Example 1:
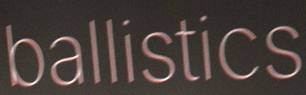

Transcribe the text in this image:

ballistics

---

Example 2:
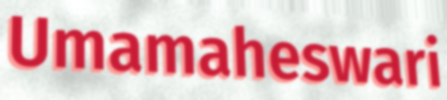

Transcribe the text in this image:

Umamaheswari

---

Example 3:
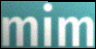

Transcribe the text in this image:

mim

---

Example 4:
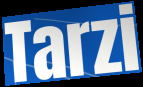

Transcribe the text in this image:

Tarzi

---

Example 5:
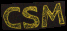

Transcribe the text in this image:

CSM